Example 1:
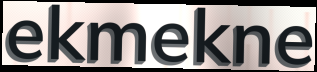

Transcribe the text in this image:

ekmekne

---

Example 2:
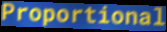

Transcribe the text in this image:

Proportional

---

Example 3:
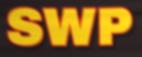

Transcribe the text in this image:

SWP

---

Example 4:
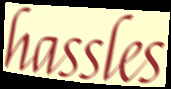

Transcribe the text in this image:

hassles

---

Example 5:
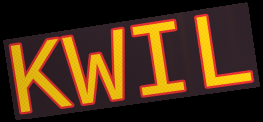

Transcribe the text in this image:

KWIL